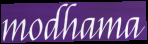
modhama